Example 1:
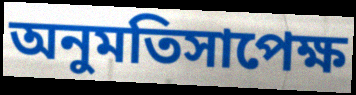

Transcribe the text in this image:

অনুমতিসাপেক্ষ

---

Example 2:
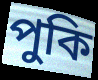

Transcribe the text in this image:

পুকি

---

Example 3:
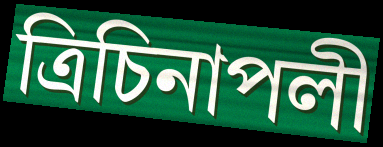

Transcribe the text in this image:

ত্রিচিনাপলী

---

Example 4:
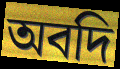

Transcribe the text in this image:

অবদি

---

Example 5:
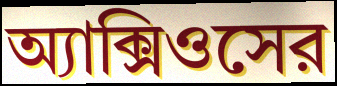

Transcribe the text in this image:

অ্যাক্সিওসের